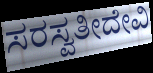
ಸರಸ್ವತೀದೇವಿ